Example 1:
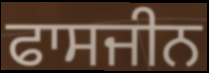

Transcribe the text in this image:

ਫਾਸਜੀਨ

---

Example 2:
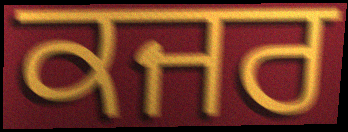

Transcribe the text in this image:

ਕਜਰ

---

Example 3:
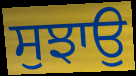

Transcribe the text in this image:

ਸੁਝਾਉ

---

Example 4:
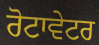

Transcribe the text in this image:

ਰੋਟਾਵੇਟਰ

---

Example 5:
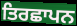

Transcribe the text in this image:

ਤਿਰਛਾਪਨ